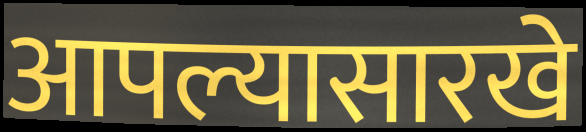
आपल्यासारखे